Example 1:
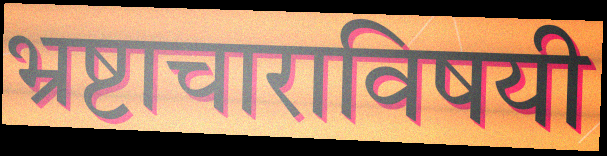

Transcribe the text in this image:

भ्रष्टाचाराविषयी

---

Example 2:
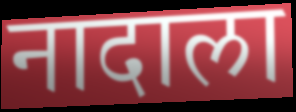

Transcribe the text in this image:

नादाला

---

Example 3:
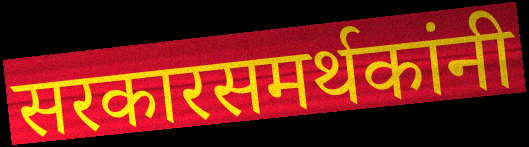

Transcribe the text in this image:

सरकारसमर्थकांनी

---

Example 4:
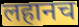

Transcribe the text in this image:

लहानच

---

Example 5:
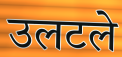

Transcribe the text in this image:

उलटले